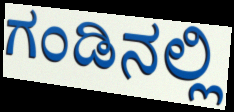
ಗಂಡಿನಲ್ಲಿ